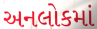
અનલોકમાં